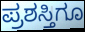
ಪ್ರಶಸ್ತಿಗೂ